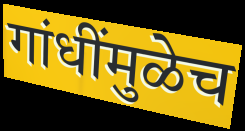
गांधींमुळेच